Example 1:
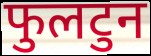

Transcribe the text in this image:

फुलटुन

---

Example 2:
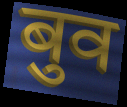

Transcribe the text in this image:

बुव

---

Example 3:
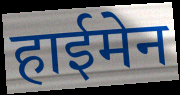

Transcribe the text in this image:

हाईमेन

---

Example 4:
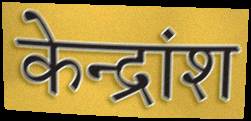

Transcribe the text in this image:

केन्द्रांश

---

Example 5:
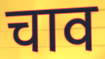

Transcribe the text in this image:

चाव